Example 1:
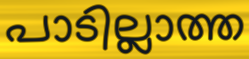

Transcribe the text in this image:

പാടില്ലാത്ത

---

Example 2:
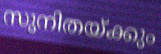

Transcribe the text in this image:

സുനിതയ്ക്കും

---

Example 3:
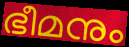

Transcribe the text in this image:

ഭീമനും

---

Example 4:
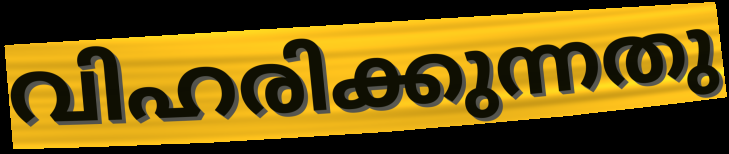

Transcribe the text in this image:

വിഹരിക്കുന്നതു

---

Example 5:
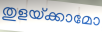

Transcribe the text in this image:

തുളയ്‌ക്കാമോ